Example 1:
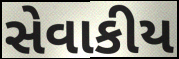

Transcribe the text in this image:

સેવાકીય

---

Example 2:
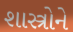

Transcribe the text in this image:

શાસ્ત્રોને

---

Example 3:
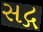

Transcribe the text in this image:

સદ્ગ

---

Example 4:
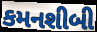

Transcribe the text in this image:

કમનશીબી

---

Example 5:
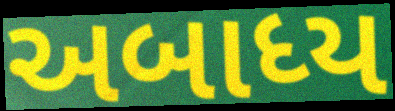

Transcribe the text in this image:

અબાધ્ય